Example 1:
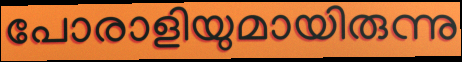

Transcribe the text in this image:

പോരാളിയുമായിരുന്നു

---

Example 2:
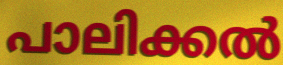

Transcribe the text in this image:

പാലിക്കൽ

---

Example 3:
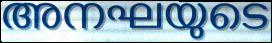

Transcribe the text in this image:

അനഘയുടെ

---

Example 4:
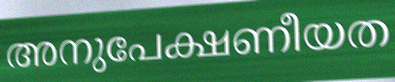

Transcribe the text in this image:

അനുപേക്ഷണീയത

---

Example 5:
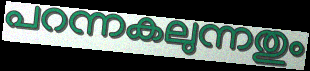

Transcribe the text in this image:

പറന്നകലുന്നതും